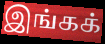
இங்கக்